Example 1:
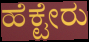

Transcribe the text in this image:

ಹೆಕ್ಟೇರು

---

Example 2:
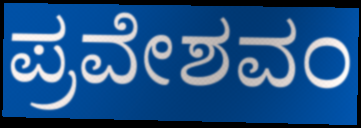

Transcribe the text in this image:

ಪ್ರವೇಶವಂ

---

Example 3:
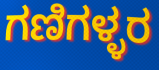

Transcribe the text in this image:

ಗಣಿಗಳ್ಳರ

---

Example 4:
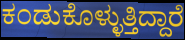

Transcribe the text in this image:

ಕಂಡುಕೊಳ್ಳುತ್ತಿದ್ದಾರೆ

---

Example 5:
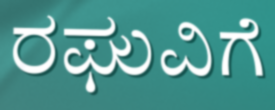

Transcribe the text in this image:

ರಘುವಿಗೆ